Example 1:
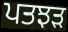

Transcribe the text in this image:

ਪਤਝਡ਼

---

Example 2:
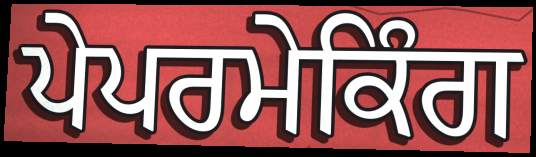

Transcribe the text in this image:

ਪੇਪਰਮੇਕਿੰਗ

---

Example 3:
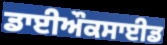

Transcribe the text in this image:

ਡਾਈਔਕਸਾਈਡ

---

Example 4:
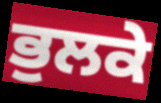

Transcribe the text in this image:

ਭੁਲਕੇ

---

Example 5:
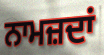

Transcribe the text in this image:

ਨਾਮਜ਼ਦਾਂ